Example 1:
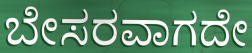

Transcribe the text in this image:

ಬೇಸರವಾಗದೇ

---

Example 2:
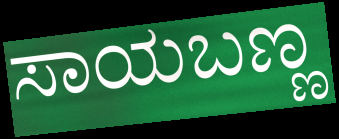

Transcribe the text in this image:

ಸಾಯಬಣ್ಣ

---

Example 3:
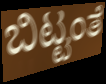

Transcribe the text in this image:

ಬಿಟ್ಟಂತೆ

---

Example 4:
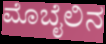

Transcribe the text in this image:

ಮೊಬೈಲಿನ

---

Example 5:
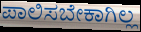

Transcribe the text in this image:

ಪಾಲಿಸಬೇಕಾಗಿಲ್ಲ